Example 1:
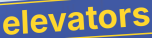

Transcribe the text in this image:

elevators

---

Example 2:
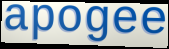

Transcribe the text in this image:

apogee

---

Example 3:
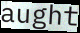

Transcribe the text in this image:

aught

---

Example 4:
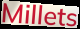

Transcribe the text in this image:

Millets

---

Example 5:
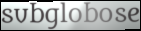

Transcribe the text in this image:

subglobose